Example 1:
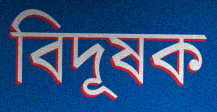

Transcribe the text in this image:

বিদূষক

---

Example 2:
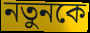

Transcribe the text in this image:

নতুনকে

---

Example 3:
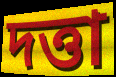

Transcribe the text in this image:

দত্তা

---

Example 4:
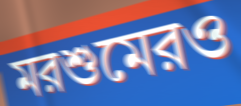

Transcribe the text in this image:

মরশুমেরও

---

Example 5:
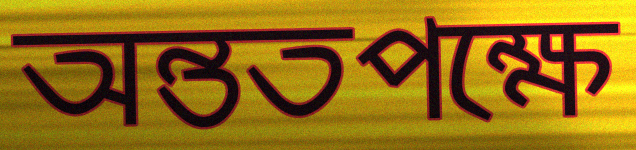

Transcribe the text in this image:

অন্ততপক্ষে